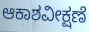
ಆಕಾಶವೀಕ್ಷಣೆ